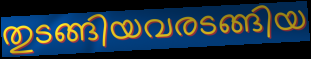
തുടങ്ങിയവരടങ്ങിയ